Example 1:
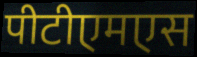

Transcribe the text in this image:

पीटीएमएस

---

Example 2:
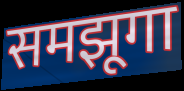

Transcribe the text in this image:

समझूगा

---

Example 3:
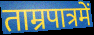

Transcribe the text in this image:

ताम्रपात्रमें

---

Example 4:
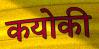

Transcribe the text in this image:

कयोकी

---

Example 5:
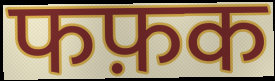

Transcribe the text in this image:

फफ़क